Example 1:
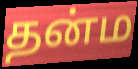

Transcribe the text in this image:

தன்ம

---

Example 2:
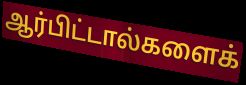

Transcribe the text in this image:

ஆர்பிட்டால்களைக்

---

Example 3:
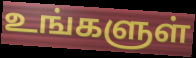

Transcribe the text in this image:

உங்களுள்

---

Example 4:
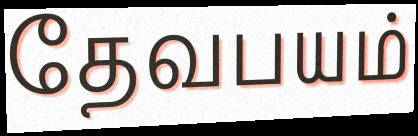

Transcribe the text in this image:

தேவபயம்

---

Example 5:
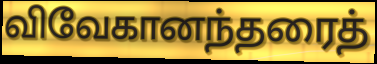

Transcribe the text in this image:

விவேகானந்தரைத்